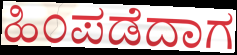
ಹಿಂಪಡೆದಾಗ